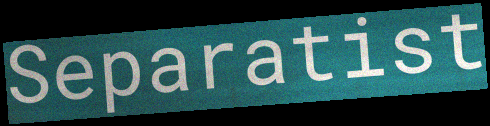
Separatist